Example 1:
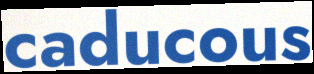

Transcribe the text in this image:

caducous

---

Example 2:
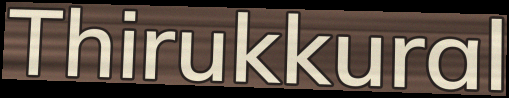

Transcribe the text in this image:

Thirukkural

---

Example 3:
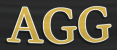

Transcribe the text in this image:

AGG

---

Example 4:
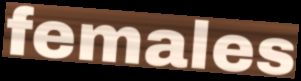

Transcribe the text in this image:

females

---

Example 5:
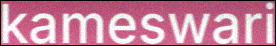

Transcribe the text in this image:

kameswari